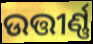
ଉତ୍ତୀର୍ଣ୍ଣ